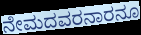
ನೇಮದವರನಾರನೂ